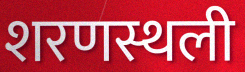
शरणस्थली